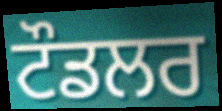
ਟੌਡਲਰ